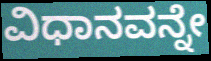
ವಿಧಾನವನ್ನೇ